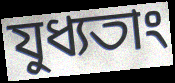
যুধ্যতাং